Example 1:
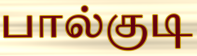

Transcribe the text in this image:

பால்குடி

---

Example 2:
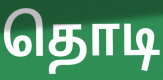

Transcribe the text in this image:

தொடி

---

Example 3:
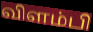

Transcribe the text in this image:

விளம்பி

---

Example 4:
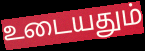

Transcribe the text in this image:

உடையதும்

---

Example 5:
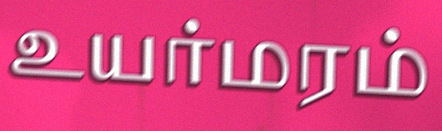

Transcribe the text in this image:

உயர்மரம்